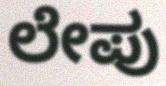
ಲೇಪು